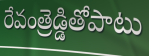
రేవంత్రెడ్డితోపాటు